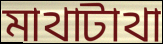
মাথাটাথা